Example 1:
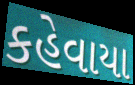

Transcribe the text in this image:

કહેવાયા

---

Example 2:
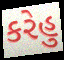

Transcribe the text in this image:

કરેહુ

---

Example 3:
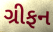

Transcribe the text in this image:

ગ્રીફન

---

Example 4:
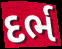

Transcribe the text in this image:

દર્ભ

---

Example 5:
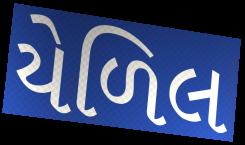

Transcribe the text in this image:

યેળિલ